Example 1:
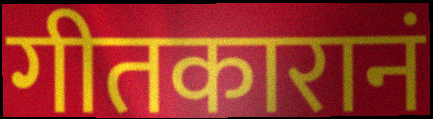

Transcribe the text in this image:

गीतकारानं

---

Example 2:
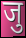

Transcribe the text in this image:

जु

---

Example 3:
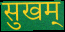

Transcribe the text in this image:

सुखम्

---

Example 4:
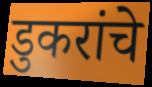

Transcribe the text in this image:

डुकरांचे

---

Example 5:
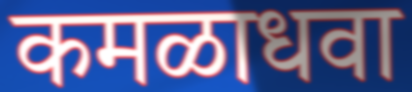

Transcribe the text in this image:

कमळाधवा